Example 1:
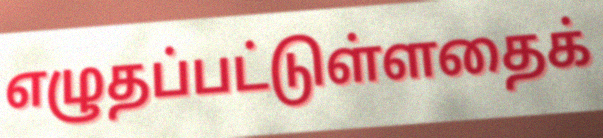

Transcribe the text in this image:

எழுதப்பட்டுள்ளதைக்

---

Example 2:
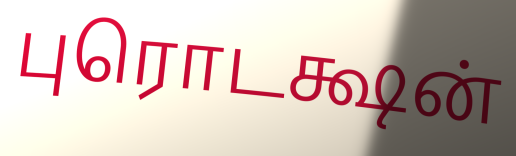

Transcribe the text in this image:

புரொடக்ஷன்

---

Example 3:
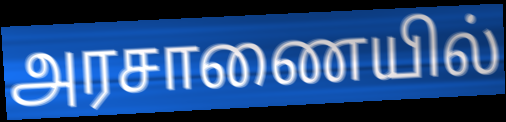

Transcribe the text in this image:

அரசாணையில்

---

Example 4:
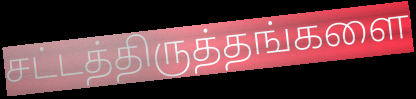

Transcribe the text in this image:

சட்டத்திருத்தங்களை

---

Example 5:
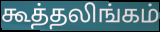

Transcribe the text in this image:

கூத்தலிங்கம்